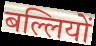
बल्लियों